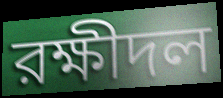
রক্ষীদল